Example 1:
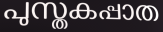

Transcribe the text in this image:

പുസ്തകപ്പാത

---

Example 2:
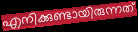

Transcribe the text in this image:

എനിക്കുണ്ടായിരുന്നത്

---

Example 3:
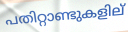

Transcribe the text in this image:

പതിറ്റാണ്ടുകളില്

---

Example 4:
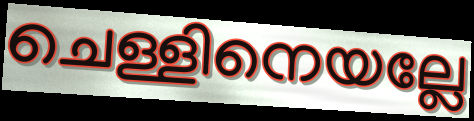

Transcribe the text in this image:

ചെള്ളിനെയല്ലേ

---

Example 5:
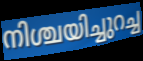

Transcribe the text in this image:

നിശ്ചയിച്ചുറച്ച